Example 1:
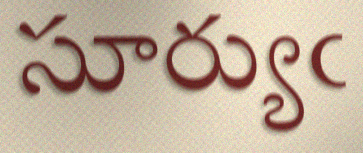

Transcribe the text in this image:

సూర్యుఁ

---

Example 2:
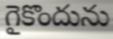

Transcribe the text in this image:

గైకొందును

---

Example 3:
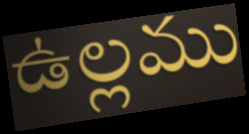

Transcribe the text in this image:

ఉల్లము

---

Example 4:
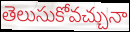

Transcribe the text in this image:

తెలుసుకోవచ్చునా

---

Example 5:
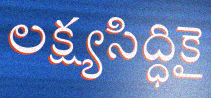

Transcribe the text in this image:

లక్ష్యసిద్ధికై